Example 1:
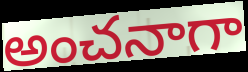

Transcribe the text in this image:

అంచనాగా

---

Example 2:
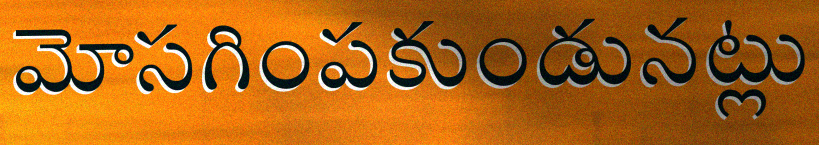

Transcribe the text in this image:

మోసగింపకుండునట్లు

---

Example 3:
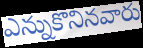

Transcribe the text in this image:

ఎన్నుకొనినవారు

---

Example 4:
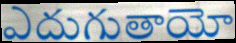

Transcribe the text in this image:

ఎదుగుతాయో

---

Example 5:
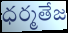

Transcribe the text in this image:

ధర్మతేజ